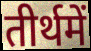
तीर्थमें